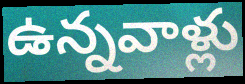
ఉన్నవాళ్లు